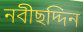
নবীছদ্দিন